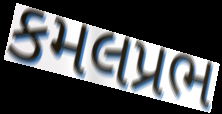
કમલપ્રભ